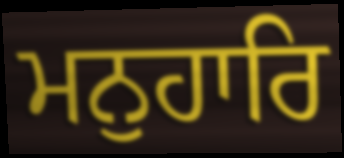
ਮਨੁਹਾਰਿ